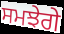
ਸਮਝੇਗੇ